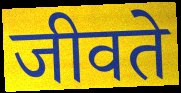
जीवते